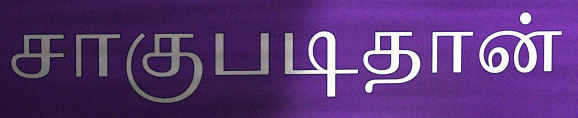
சாகுபடிதான்